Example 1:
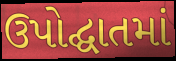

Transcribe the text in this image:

ઉપોદ્ઘાતમાં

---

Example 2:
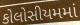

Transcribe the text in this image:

કોલોસીયમમાં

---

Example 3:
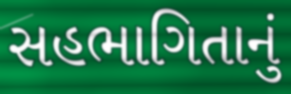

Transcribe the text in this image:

સહભાગિતાનું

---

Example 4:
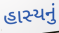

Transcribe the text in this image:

હાસ્યનું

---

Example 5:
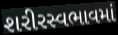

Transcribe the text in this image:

શરીરસ્વભાવમાં